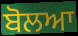
ਬੋਲਆ